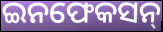
ଇନଫେକସନ୍